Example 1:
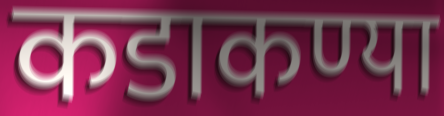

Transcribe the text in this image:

कडाकण्या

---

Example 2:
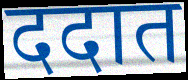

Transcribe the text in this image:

ददात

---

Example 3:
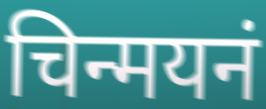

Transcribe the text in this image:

चिन्मयनं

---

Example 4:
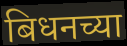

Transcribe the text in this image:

बिधनच्या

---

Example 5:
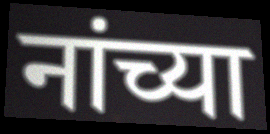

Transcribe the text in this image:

नांच्या